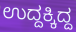
ಉದ್ದಕ್ಕಿದ್ದ